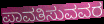
ಪಾವತಿಸುವವರ